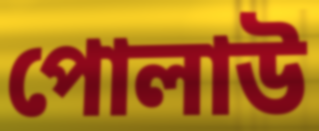
পোলাউ